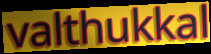
valthukkal